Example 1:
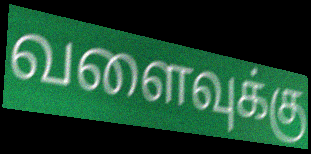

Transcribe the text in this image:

வளைவுக்கு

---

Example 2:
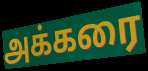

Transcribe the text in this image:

அக்கரை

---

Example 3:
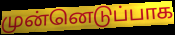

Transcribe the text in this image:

முன்னெடுப்பாக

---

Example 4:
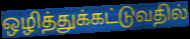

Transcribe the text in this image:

ஒழித்துக்கட்டுவதில்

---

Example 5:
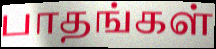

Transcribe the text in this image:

பாதங்கள்